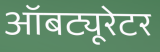
ऑबट्यूरेटर